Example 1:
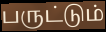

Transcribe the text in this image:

பருட்டும்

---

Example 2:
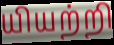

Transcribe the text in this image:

யியற்றி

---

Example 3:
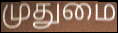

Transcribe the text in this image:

முதுமை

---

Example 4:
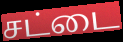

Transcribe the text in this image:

சட்டை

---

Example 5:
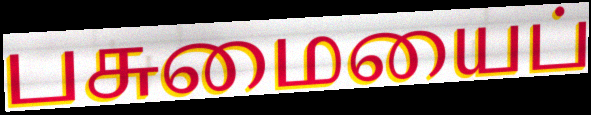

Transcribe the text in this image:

பசுமையைப்